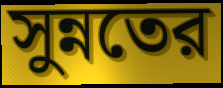
সুন্নতের